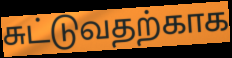
சுட்டுவதற்காக